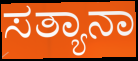
ಸತ್ಯಾನಾ